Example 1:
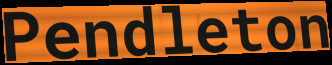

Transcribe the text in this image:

Pendleton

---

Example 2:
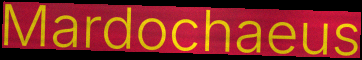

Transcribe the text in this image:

Mardochaeus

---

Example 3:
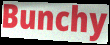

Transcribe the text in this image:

Bunchy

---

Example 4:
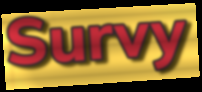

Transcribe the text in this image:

Survy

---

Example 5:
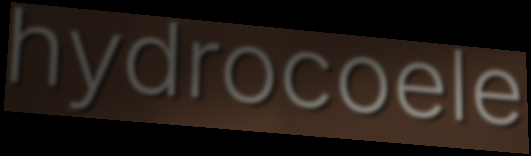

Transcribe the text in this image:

hydrocoele